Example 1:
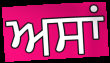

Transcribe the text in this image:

ਅਸਾਂ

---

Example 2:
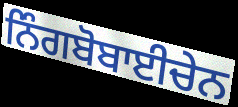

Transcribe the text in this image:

ਨਿੰਗਬੋਬਾਈਚੇਨ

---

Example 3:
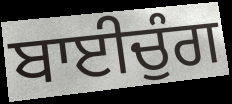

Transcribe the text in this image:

ਬਾਈਚੁੰਗ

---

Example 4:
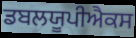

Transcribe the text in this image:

ਡਬਲਯੂਪੀਐਕਸ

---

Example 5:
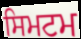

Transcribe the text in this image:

ਸਿਮਟਮ